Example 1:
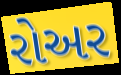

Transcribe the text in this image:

રોઅર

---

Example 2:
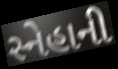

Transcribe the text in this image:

સ્નેહાની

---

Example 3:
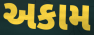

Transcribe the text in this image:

અકામ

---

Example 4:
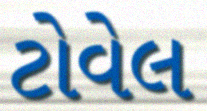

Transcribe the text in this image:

ટોવેલ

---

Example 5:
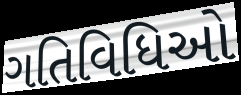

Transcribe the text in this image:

ગતિવિધિઓ